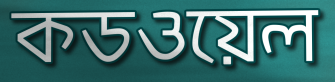
কডওয়েল